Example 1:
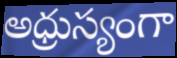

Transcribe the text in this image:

అధ్రుస్యంగా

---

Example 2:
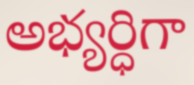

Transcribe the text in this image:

అభ్యర్ధిగా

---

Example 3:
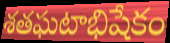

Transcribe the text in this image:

శతఘటాభిషేకం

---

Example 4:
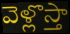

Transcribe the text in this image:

వెళ్లొస్తా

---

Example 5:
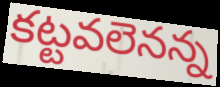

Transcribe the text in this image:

కట్టవలెనన్న